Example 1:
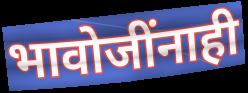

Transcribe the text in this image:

भावोजींनाही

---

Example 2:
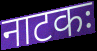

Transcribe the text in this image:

नाटकः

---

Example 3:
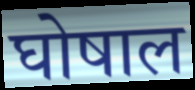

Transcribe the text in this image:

घोषाल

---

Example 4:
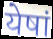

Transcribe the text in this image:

येषां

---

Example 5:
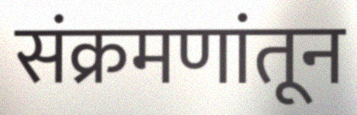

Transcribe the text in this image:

संक्रमणांतून